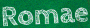
Romae